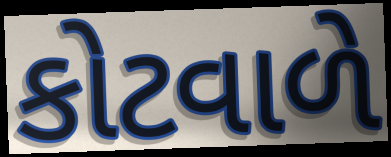
કોટવાળે